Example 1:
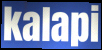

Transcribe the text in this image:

kalapi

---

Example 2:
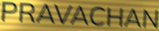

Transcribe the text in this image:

PRAVACHAN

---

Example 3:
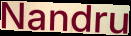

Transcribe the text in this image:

Nandru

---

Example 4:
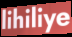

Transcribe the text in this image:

lihiliye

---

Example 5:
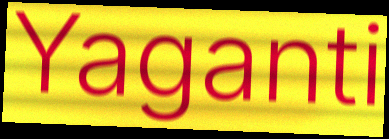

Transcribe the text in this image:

Yaganti